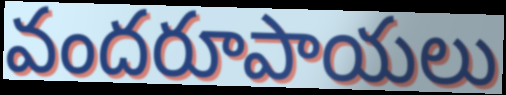
వందరూపాయలు